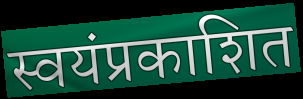
स्वयंप्रकाशित